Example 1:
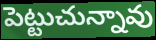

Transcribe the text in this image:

పెట్టుచున్నావు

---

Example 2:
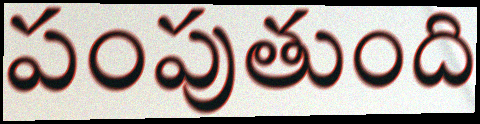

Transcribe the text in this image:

పంపుతుంది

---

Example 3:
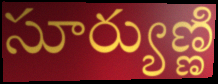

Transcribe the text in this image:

సూర్యుణ్ణి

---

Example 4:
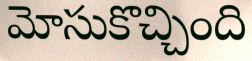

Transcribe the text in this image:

మోసుకొచ్చింది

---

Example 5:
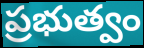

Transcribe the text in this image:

ప్రభుత్వం